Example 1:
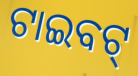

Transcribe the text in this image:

ଟାଇବଟ୍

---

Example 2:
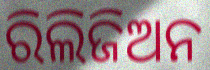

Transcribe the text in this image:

ରିଲିଜିଅନ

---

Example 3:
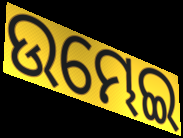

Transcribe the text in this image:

ଉମ୍ଭେଇ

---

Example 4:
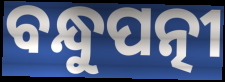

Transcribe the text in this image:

ବନ୍ଧୁପତ୍ନୀ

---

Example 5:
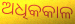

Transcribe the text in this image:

ଅଧିକକାଳ